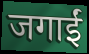
जगाईं